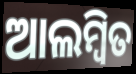
ଆଲମ୍ୱିତ